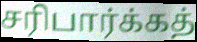
சரிபார்க்கத்